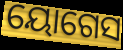
ୟୋଗେସ